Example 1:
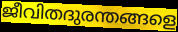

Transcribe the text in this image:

ജീവിതദുരന്തങ്ങളെ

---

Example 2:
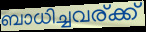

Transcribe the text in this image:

ബാധിച്ചവര്ക്ക്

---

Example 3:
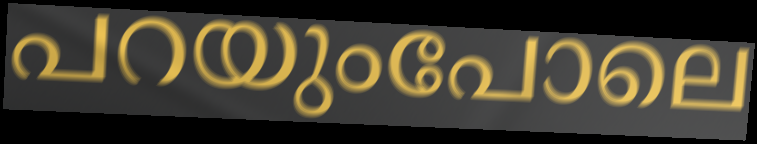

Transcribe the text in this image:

പറയുംപോലെ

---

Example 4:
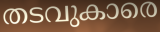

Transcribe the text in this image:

തടവുകാരെ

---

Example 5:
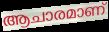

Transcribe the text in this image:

ആചാരമാണ്